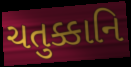
ચતુક્કાનિ